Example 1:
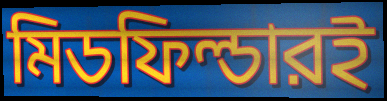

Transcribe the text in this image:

মিডফিল্ডারই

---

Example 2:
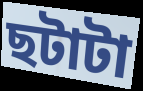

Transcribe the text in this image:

ছটাটা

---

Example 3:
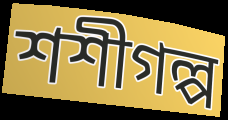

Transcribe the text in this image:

শশীগল্প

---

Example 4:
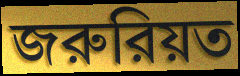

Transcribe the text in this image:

জরুরিয়ত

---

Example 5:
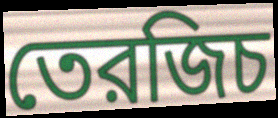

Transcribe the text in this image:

তেরজিচ